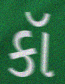
કૉ